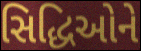
સિદ્ધિઓને